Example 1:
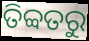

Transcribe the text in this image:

ତିବ୍ବତରୁ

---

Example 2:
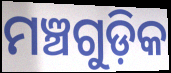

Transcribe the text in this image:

ମଞ୍ଚଗୁଡ଼ିକ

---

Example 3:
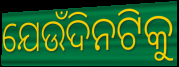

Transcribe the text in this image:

ଯେଉଁଦିନଟିକୁ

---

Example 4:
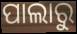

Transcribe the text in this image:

ପାଲାରୁ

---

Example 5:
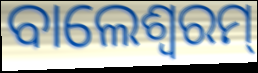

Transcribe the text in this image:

ବାଲେଶ୍ବରମ୍